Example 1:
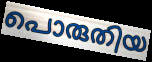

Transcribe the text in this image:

പൊരുതിയ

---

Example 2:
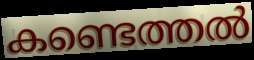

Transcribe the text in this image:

കണ്ടെത്തൽ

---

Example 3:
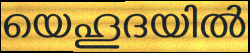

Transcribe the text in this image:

യെഹൂദയിൽ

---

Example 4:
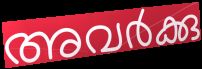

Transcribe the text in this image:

അവർക്കു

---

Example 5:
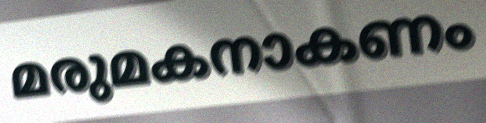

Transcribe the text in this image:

മരുമകനാകണം